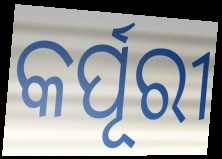
କର୍ପୂରୀ